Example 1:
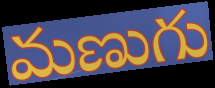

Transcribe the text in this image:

మణుగు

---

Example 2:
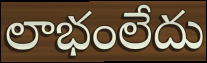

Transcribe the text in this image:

లాభంలేదు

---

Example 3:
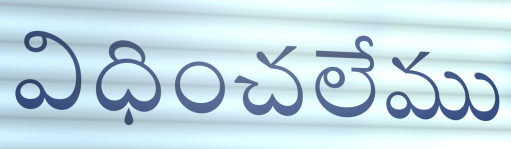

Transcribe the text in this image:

విధించలేము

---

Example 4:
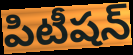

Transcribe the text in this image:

పిటీషన్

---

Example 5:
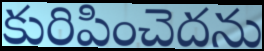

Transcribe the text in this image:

కురిపించెదను